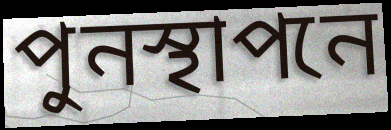
পুনস্থাপনে